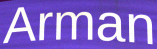
Arman